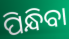
ପିନ୍ଧିବା